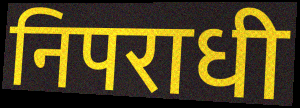
निपराधी